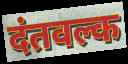
दंतवल्क